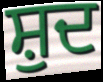
ਸ਼ੁਦ